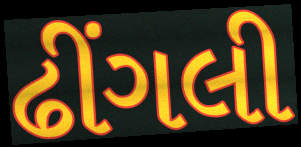
ઢીંગલી